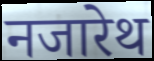
नजारेथ